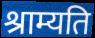
श्राम्यति